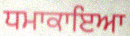
ਧਮਾਕਾਇਆ